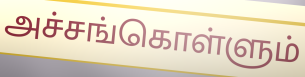
அச்சங்கொள்ளும்